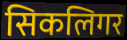
सिकलिगर